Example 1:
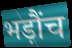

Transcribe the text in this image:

भड़ौंच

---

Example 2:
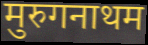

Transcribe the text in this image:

मुरुगनाथम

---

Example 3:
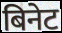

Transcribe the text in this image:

बिनेट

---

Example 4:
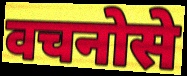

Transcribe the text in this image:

वचनोसे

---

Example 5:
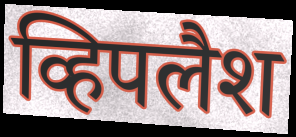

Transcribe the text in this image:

व्हिपलैश